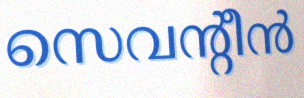
സെവന്റീൻ